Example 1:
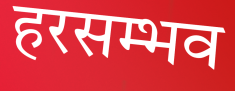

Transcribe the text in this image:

हरसम्भव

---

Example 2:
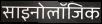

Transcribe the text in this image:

साइनोलॉजिक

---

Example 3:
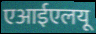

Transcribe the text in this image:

एआईएलयू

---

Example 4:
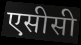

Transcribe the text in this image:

एसीसी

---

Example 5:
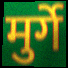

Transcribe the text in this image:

मुर्गे